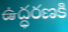
ఉద్ధరణకి